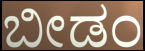
ಬೀಡಂ